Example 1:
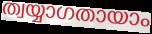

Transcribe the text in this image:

ത്വയ്യാഗതായാം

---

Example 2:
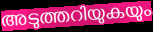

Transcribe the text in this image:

അടുത്തറിയുകയും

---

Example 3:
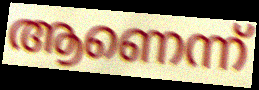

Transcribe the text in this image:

ആണെന്ന്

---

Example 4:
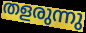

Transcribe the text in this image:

തളരുന്നു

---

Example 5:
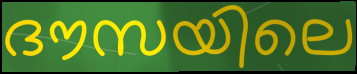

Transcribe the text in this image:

ദൗസയിലെ